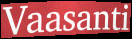
Vaasanti